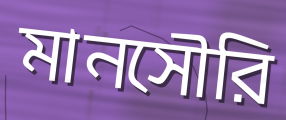
মানসৌরি